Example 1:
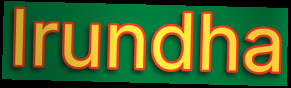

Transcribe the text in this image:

Irundha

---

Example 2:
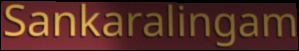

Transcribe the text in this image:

Sankaralingam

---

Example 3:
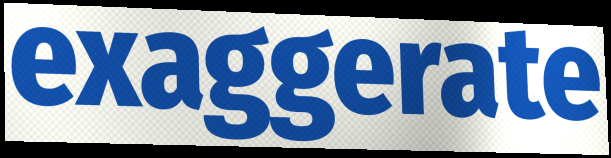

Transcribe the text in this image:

exaggerate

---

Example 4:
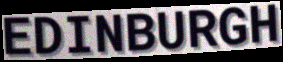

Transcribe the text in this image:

EDINBURGH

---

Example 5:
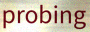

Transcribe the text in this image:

probing